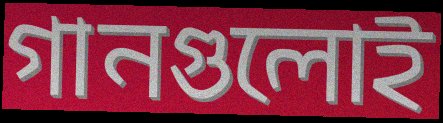
গানগুলোই